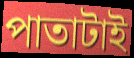
পাতাটাই